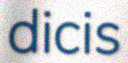
dicis